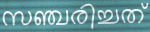
സഞ്ചരിച്ചത്